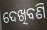
ଦେଖିବଣି